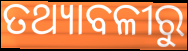
ତଥ୍ୟାବଳୀରୁ